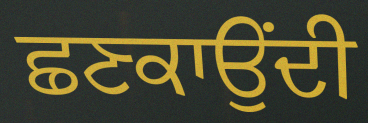
ਛਣਕਾਉਂਦੀ